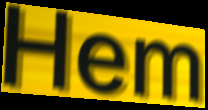
Hem